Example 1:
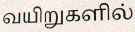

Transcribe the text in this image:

வயிறுகளில்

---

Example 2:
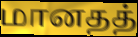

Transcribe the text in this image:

மானதத்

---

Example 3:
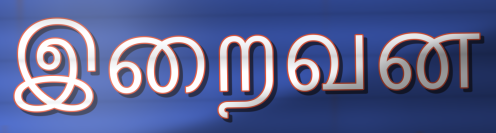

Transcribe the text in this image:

இறைவன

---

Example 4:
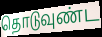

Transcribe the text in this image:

தொடுவுண்ட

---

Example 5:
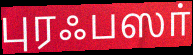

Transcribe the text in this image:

புரஃபஸர்